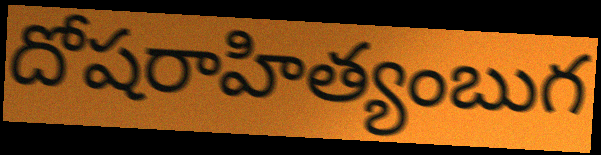
దోషరాహిత్యంబుగ